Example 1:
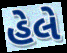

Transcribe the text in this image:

હેલે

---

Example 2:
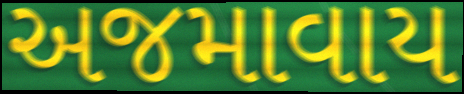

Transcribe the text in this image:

અજમાવાય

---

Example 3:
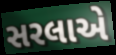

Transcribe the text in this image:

સરલાએ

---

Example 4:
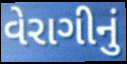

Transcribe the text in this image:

વેરાગીનું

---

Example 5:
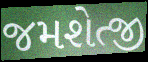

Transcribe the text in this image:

જમશેત્જી